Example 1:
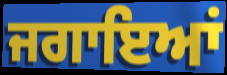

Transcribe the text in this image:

ਜਗਾਇਆਂ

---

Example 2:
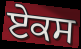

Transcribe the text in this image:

ਏਕਸ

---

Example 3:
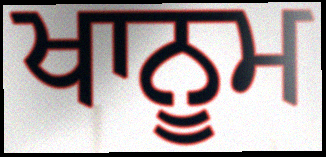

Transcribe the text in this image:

ਖਾਨੂਮ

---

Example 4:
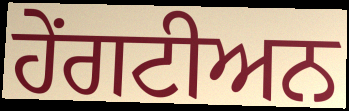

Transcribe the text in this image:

ਹੇਂਗਟੀਅਨ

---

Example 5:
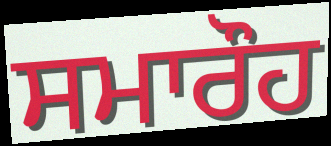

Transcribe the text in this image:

ਸਮਾਰੌਹ